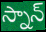
స్నాన్